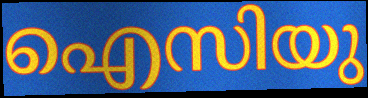
ഐസിയു